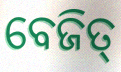
ବେଜିତ୍